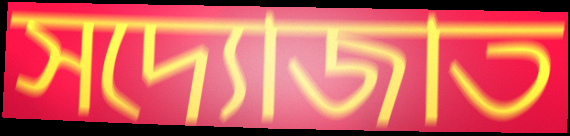
সদ্যোজাত